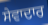
ਸੇਵਾਦਾਰ